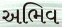
અભિવ